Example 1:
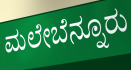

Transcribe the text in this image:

ಮಲೇಬೆನ್ನೂರು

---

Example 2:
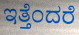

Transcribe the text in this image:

ಇತ್ತೆಂದರೆ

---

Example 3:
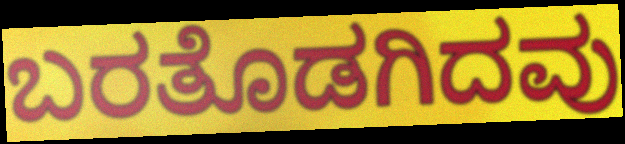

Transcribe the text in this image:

ಬರತೊಡಗಿದವು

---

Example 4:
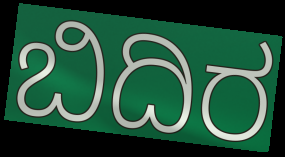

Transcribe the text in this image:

ಬಿದಿರ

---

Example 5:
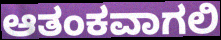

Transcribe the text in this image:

ಆತಂಕವಾಗಲಿ